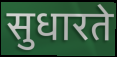
सुधारते